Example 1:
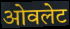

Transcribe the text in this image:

ओवलेट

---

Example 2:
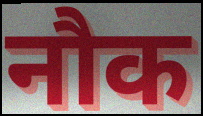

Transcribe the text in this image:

नौक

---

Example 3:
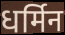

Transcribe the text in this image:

धर्मिन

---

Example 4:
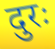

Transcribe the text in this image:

दुरः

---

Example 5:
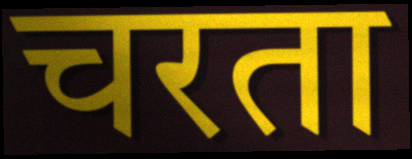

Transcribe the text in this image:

चरता